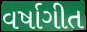
વર્ષાગીત